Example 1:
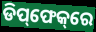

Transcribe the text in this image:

ଡିପ୍‌ଫେକ୍‌ରେ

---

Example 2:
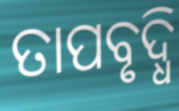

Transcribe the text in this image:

ତାପବୃଦ୍ଧି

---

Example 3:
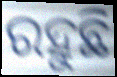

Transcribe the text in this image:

ରହୁଛି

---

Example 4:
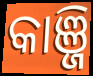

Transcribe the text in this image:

କାଞ୍ଜି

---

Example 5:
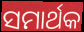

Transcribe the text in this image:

ସମାର୍ଥକ